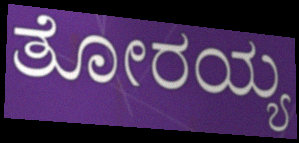
ತೋರಯ್ಯ